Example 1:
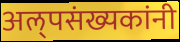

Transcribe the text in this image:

अल्पसंख्यकांनी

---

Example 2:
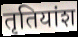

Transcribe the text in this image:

तृतियांश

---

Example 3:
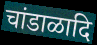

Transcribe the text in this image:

चांडाळादि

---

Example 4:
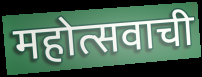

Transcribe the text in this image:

महोत्सवाची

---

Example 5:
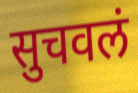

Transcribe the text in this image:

सुचवलं